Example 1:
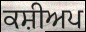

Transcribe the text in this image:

ਕਸ਼ੀਅਪ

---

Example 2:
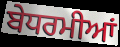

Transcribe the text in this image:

ਬੇਧਰਮੀਆਂ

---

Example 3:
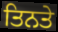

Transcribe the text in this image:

ਤਿਨਤੇ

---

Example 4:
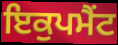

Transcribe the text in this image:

ਇਕੁਪਮੈਂਟ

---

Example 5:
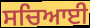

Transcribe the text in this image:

ਸਚਿਆਈ